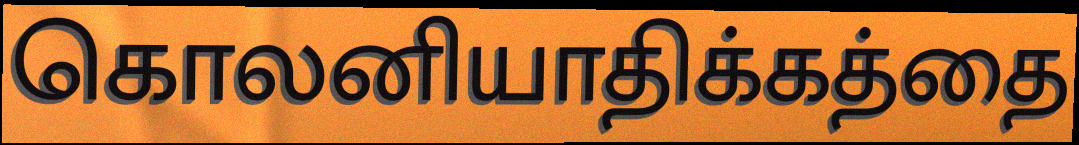
கொலனியாதிக்கத்தை